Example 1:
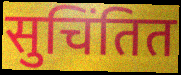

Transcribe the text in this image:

सुचिंतित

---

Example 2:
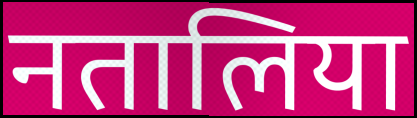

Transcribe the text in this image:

नतालिया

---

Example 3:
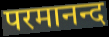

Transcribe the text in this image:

परमानन्द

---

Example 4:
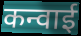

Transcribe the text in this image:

कन्वाई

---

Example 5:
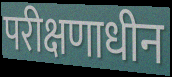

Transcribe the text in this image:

परीक्षणाधीन